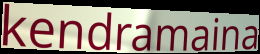
kendramaina